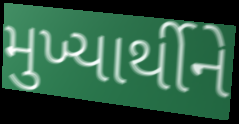
મુખ્યાર્થીને